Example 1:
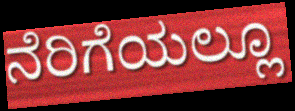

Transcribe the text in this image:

ನೆರಿಗೆಯಲ್ಲೂ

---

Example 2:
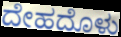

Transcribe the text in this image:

ದೇಹದೊಳು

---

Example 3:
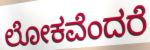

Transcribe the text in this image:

ಲೋಕವೆಂದರೆ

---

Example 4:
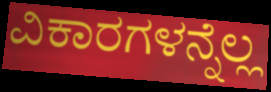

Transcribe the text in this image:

ವಿಕಾರಗಳನ್ನೆಲ್ಲ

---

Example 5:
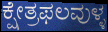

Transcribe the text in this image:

ಕ್ಷೇತ್ರಫಲವುಳ್ಳ